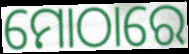
ମୋଠାରେ